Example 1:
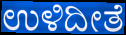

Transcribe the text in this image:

ಉಳಿದೀತೆ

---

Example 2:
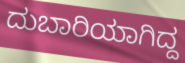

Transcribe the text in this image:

ದುಬಾರಿಯಾಗಿದ್ದ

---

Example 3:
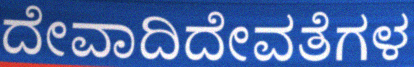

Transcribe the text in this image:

ದೇವಾದಿದೇವತೆಗಳ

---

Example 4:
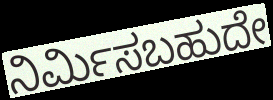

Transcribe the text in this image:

ನಿರ್ಮಿಸಬಹುದೇ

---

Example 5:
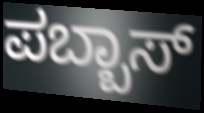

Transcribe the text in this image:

ಪಬ್ಬಾಸ್